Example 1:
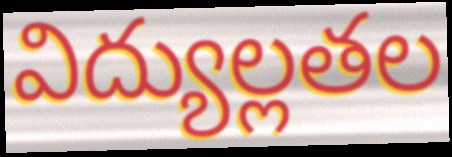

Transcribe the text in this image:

విద్యుల్లతల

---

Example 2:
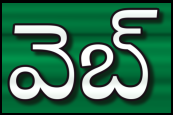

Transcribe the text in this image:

వెబ్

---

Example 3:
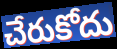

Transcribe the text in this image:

చేరుకోదు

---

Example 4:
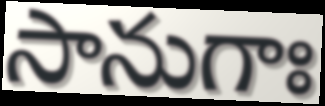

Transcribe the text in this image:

సానుగాః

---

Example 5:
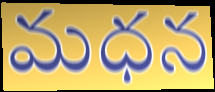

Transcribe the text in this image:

మధన